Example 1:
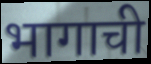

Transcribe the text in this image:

भागाची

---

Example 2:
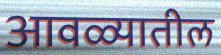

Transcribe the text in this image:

आवळ्यातील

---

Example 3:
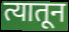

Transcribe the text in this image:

त्यातून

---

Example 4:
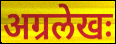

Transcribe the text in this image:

अग्रलेखः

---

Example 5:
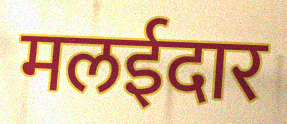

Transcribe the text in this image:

मलईदार